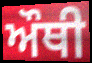
ਔਥੀ